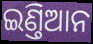
ଇଣ୍ତିଆନ